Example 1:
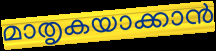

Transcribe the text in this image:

മാതൃകയാക്കാൻ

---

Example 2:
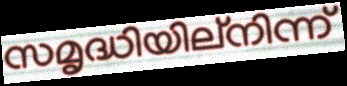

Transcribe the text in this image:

സമൃദ്ധിയില്നിന്ന്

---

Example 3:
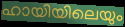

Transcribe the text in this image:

ഹായിയിലെയും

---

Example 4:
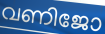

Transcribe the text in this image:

വണിജോ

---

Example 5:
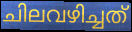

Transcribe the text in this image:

ചിലവഴിച്ചത്